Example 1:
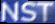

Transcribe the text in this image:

NST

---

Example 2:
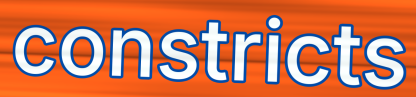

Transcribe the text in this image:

constricts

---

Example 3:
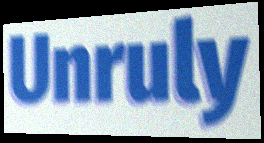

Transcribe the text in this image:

Unruly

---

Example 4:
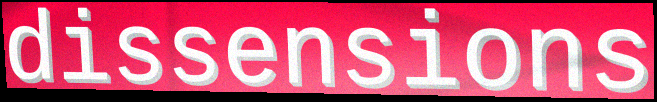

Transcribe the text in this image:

dissensions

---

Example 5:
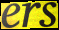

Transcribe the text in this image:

ers